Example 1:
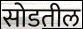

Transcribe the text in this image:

सोडतील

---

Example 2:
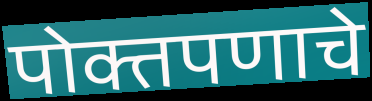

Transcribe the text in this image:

पोक्तपणाचे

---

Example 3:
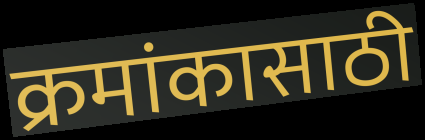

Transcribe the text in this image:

क्रमांकासाठी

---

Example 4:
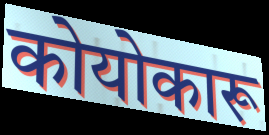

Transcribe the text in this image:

कोयोकारू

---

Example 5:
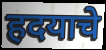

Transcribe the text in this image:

हदयाचे